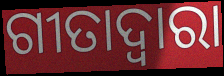
ଗୀତାଦ୍ଵାରା